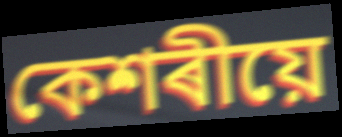
কেশৰীয়ে